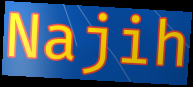
Najih